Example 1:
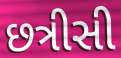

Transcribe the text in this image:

છત્રીસી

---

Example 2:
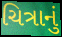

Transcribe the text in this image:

ચિત્રાનું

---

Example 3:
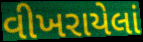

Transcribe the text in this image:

વીખરાયેલાં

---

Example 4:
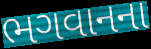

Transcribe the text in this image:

ભગવાનના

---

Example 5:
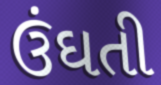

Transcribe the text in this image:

ઉંઘતી